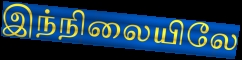
இந்நிலையிலே